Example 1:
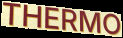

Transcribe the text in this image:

THERMO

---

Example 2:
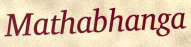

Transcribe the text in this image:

Mathabhanga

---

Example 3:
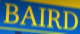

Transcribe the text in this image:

BAIRD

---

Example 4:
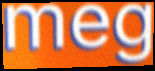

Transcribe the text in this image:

meg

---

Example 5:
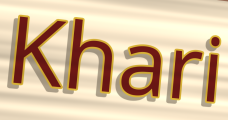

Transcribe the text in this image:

Khari